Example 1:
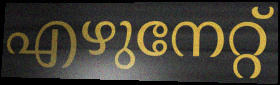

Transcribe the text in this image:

എഴുനേറ്റ്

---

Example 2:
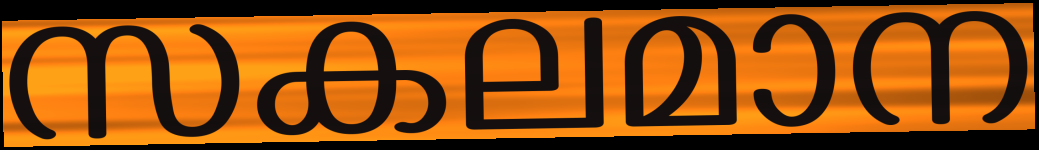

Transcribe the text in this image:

സകലമാന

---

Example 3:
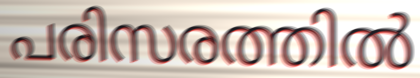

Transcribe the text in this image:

പരിസരത്തിൽ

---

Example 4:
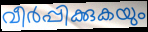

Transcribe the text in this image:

വീർപ്പിക്കുകയും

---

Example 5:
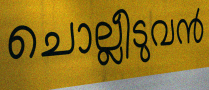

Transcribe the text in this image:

ചൊല്ലീടുവൻ